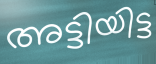
അട്ടിയിട്ട